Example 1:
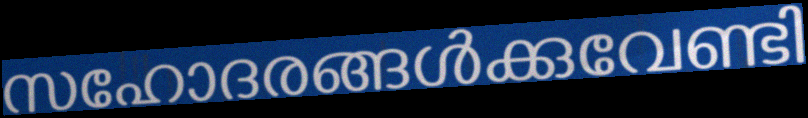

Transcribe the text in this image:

സഹോദരങ്ങൾക്കുവേണ്ടി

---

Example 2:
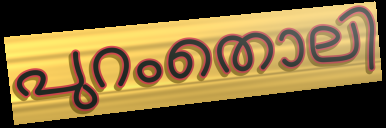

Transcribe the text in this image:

പുറംതൊലി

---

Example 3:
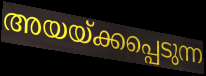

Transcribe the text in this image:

അയയ്ക്കപ്പെടുന്ന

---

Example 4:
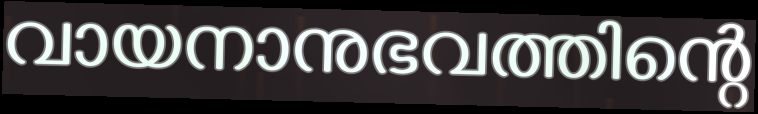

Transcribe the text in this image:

വായനാനുഭവത്തിന്റെ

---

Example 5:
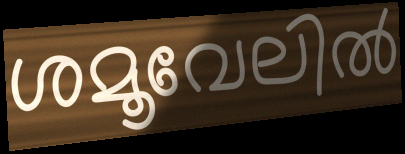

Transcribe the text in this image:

ശമൂവേലിൽ